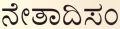
ನೇತಾದಿಸಂ